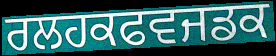
ਰਲਹਕਫਵਜਡਕ